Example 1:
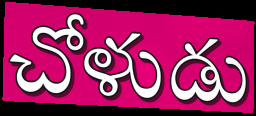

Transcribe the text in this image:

చోళుడు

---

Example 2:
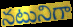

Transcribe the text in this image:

నటునిగా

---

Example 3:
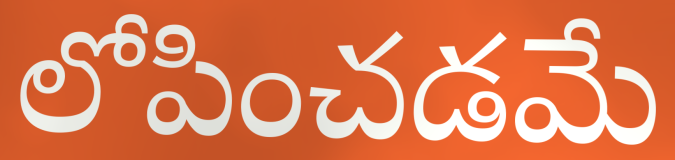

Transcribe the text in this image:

లోపించడమే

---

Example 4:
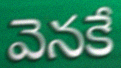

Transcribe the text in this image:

వెనకే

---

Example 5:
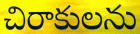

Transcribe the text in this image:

చిరాకులను